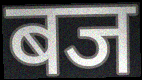
बज